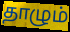
தாழும்